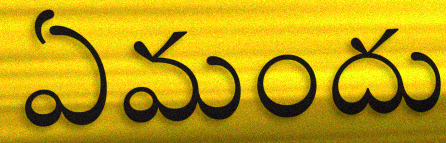
ఏమందు